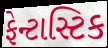
ફેન્ટાસ્ટિક